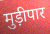
मुड़ीपार